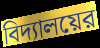
বিদ্যালয়ের